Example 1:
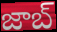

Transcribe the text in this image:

జాబ్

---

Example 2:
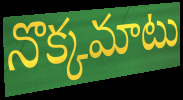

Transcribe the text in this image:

నొక్కమాటు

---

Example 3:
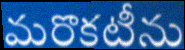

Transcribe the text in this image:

మరొకటీను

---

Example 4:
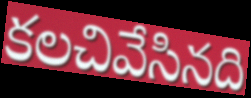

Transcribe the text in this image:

కలచివేసినది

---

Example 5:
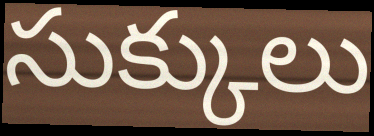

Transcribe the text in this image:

సుక్కులు